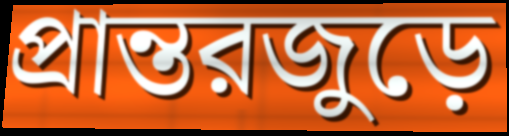
প্রান্তরজুড়ে